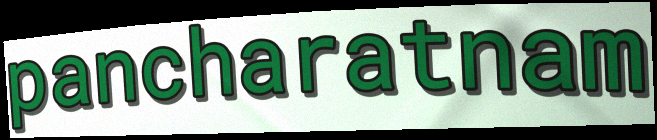
pancharatnam